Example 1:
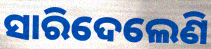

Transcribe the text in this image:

ସାରିଦେଲେଣି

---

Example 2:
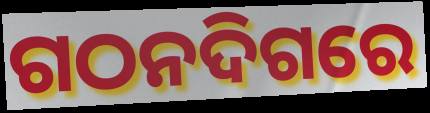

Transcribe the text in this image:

ଗଠନଦିଗରେ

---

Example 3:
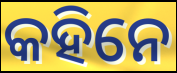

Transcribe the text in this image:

କହିନେ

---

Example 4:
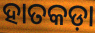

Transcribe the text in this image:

ହାତକଡ଼ା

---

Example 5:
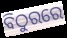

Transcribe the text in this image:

ବିଠୁରରେ